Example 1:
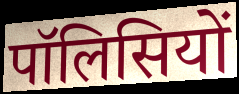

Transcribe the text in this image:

पॉलिसियों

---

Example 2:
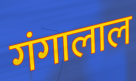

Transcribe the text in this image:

गंगालाल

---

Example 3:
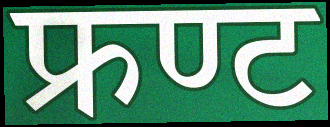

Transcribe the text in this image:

फ्रण्ट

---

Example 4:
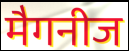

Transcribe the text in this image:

मैगनीज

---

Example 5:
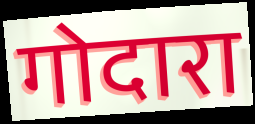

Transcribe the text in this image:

गोदारा